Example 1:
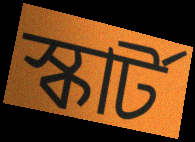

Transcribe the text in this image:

স্কাৰ্ট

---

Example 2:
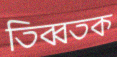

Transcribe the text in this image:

তিব্বতক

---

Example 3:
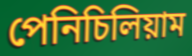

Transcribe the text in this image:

পেনিচিলিয়াম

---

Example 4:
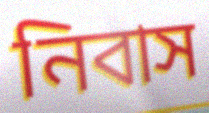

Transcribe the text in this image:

নিবাস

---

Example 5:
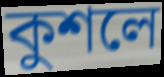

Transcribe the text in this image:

কুশলে